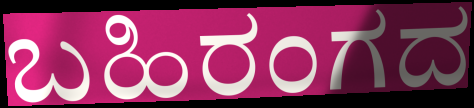
ಬಹಿರಂಗದ